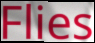
Flies